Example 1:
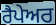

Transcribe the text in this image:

ਰੈਪੇਅਰ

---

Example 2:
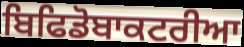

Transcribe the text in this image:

ਬਿਫਿਡੋਬਾਕਟਰੀਆ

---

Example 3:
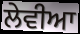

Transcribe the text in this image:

ਲੇਵੀਆ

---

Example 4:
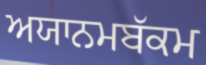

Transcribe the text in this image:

ਅਯਾਨਮਬੱਕਮ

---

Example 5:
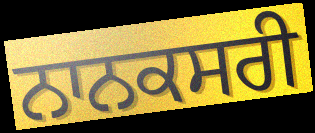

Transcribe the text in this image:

ਨਾਨਕਸਰੀ